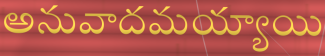
అనువాదమయ్యాయి